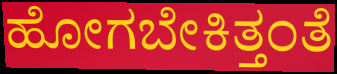
ಹೋಗಬೇಕಿತ್ತಂತೆ